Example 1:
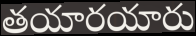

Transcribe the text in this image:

తయారయారు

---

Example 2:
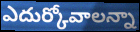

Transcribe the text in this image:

ఎదుర్కోవాలన్నా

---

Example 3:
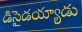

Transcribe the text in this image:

డిసైడయ్యాడు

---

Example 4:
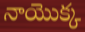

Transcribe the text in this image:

నాయొక్క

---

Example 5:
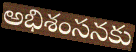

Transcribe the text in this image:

అభిశంసనకు